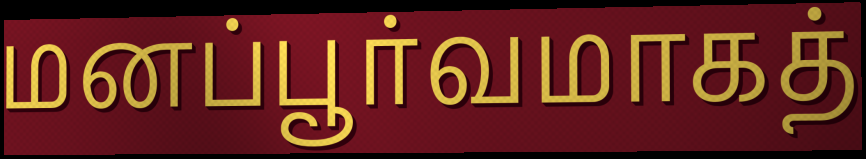
மனப்பூர்வமாகத்